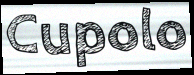
Cupolo